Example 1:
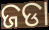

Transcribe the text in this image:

ଜଡା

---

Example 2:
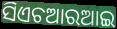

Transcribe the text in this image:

ସିଏଚଆରଆଇ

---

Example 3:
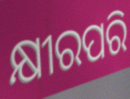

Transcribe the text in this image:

କ୍ଷୀରପରି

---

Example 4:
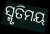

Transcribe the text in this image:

ସ୍ମୃତିମୟ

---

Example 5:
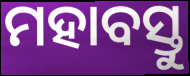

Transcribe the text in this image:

ମହାବସ୍ତୁ